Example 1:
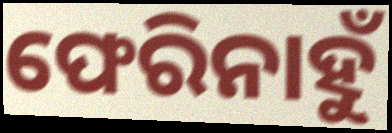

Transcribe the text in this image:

ଫେରିନାହୁଁ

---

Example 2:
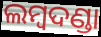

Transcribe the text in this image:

ଲମ୍ୱଦଣ୍ଡା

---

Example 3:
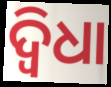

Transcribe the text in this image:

ଦ୍ବିଧା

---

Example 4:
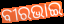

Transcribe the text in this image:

ବୀରଭାଇ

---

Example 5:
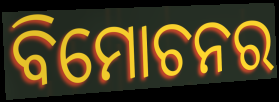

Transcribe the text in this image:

ବିମୋଚନର